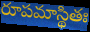
రూపమాస్థితః